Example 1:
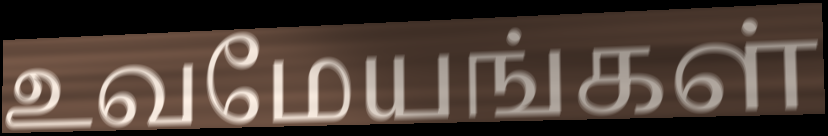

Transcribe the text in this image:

உவமேயங்கள்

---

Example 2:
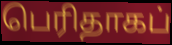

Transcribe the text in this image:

பெரிதாகப்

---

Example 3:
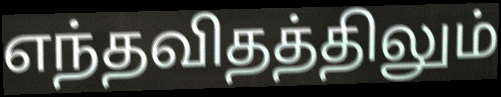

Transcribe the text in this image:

எந்தவிதத்திலும்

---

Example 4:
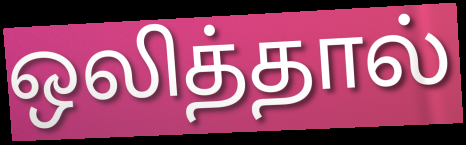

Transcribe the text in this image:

ஒலித்தால்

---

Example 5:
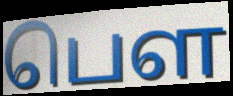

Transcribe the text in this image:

பெள